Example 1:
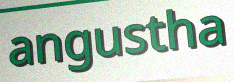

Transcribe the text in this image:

angustha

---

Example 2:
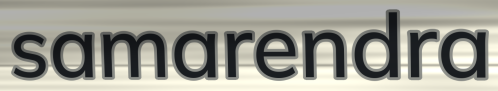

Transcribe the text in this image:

samarendra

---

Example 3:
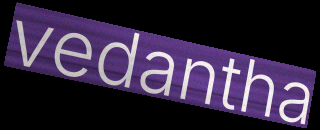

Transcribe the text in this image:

vedantha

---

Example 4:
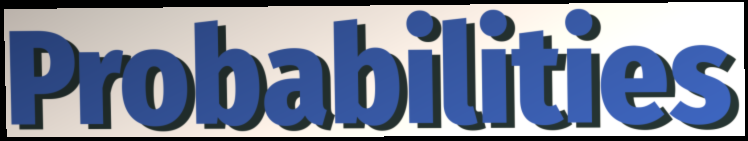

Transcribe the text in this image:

Probabilities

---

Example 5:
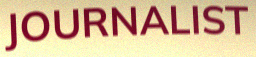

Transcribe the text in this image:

JOURNALIST